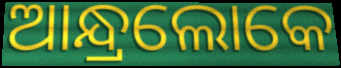
ଆନ୍ଧ୍ରଲୋକେ